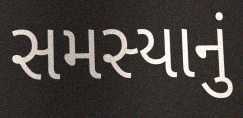
સમસ્યાનું